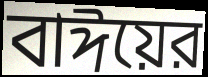
বাঈয়ের